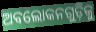
ଅବଲୋକନଗୁଡ଼ିକୁ